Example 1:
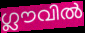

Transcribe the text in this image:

ഗ്ലൗവിൽ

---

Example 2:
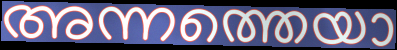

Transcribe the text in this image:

അന്നത്തെയാ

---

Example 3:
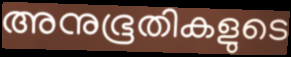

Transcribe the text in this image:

അനുഭൂതികളുടെ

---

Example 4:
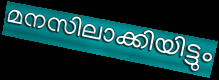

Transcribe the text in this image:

മനസിലാക്കിയിട്ടും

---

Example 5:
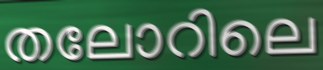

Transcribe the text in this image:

തലോറിലെ